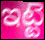
ఇట్టె